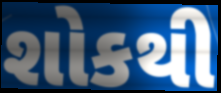
શોકથી